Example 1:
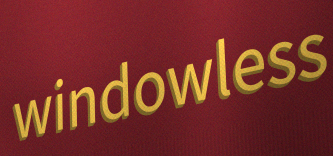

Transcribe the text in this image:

windowless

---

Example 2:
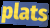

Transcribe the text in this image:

plats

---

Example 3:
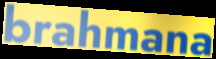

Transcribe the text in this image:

brahmana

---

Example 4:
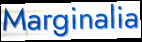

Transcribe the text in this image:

Marginalia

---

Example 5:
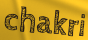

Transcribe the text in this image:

chakri